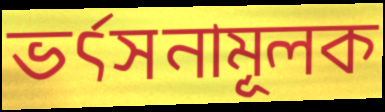
ভর্ৎসনামূলক